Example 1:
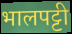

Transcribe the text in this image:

भालपट्टी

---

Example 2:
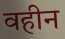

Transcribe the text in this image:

वहीन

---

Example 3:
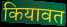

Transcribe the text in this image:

कियावत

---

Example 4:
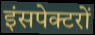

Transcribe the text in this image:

इंसपेक्टरों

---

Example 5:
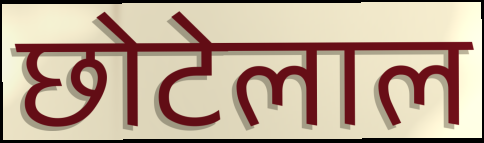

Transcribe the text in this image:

छोटेलाल